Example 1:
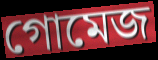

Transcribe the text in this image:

গোমেজ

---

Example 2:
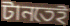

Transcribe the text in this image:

টানতেই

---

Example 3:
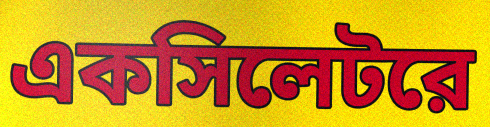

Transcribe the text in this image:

একসিলেটরে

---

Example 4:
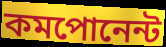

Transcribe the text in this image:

কমপোনেন্ট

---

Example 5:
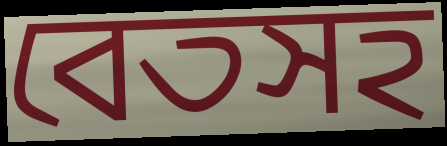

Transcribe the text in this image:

বেতসহ